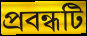
প্ৰবন্ধটি